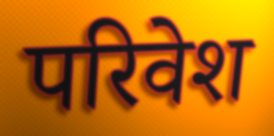
परिवेश